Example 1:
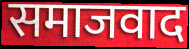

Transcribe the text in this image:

समाजवाद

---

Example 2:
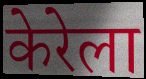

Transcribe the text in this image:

केरेला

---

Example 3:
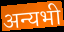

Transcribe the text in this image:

अन्यभी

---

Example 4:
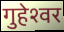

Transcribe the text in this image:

गुहेश्वर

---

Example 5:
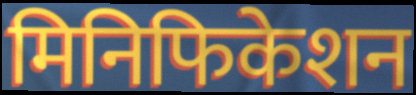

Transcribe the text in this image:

मिनिफिकेशन